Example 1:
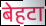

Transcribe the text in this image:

बेहटा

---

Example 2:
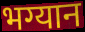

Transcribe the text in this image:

भग्यान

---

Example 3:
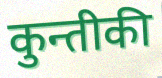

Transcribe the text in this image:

कुन्तीकी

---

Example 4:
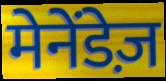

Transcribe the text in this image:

मेनेंडेज़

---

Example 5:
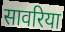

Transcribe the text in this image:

सावरिया